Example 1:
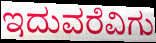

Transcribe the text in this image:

ಇದುವರೆವಿಗು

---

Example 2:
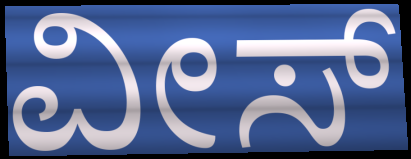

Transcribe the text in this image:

ವೀಸ್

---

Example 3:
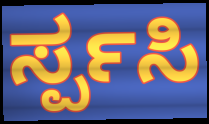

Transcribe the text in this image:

ರ್ಸ್ಪಸಿ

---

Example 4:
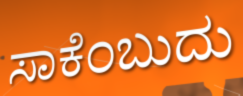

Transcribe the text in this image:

ಸಾಕೆಂಬುದು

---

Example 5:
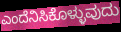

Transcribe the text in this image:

ಎಂದೆನಿಸಿಕೊಳ್ಳುವುದು